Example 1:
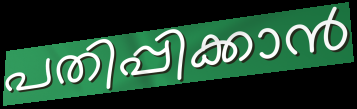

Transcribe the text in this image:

പതിപ്പിക്കാൻ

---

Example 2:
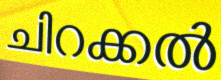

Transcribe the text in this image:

ചിറക്കൽ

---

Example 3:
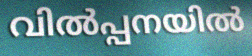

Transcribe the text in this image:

വിൽപ്പനയിൽ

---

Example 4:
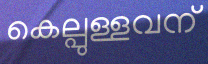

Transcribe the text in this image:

കെല്പുള്ളവന്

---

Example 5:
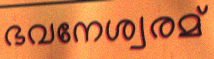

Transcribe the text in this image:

ഭവനേശ്വരമ്